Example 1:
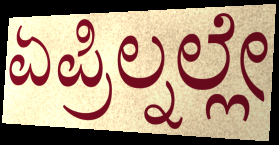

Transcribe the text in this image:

ಏಪ್ರಿಲ್ನಲ್ಲೇ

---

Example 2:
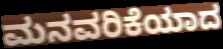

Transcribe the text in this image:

ಮನವರಿಕೆಯಾದ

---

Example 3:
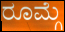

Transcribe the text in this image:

ರೂಮ್ಗೆ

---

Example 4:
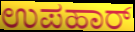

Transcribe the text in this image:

ಉಪಹಾರ್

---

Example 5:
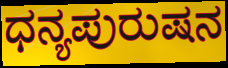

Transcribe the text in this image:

ಧನ್ಯಪುರುಷನ